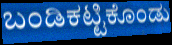
ಬಂಡಿಕಟ್ಟಿಕೊಂಡು